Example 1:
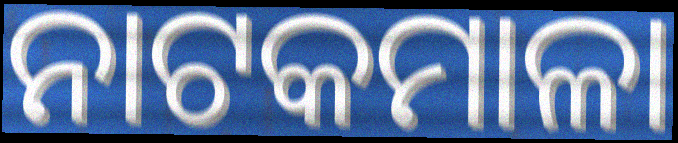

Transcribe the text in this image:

ନାଟକମାଳା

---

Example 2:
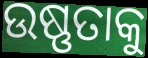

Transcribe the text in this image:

ଉଷ୍ଣତାକୁ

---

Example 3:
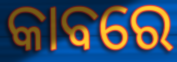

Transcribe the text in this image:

କାବରେ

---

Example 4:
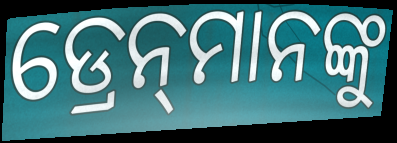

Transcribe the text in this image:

ଡ୍ରେନ୍‌ମାନଙ୍କୁ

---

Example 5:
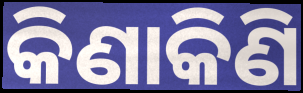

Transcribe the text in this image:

କିଣାକିଣି